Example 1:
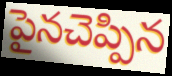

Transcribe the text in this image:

పైనచెప్పిన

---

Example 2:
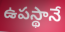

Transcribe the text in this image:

ఉపస్థానే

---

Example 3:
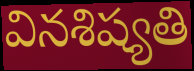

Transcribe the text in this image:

వినశిష్యతి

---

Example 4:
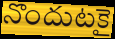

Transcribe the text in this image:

నొందుటకై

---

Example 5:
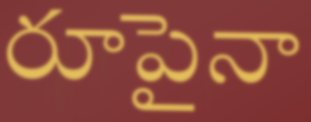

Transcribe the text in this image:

రూపైనా